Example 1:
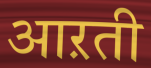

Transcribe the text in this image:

आऱती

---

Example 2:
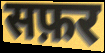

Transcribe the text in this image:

सफ़र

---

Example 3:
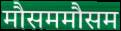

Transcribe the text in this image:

मौसममौसम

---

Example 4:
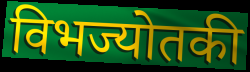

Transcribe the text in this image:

विभज्योतकी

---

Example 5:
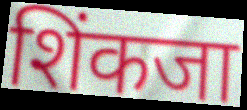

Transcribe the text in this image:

शिंकजा